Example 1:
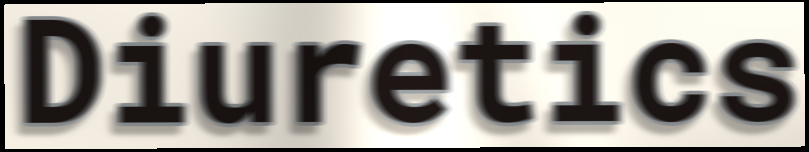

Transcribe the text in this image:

Diuretics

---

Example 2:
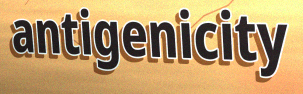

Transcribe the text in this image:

antigenicity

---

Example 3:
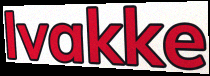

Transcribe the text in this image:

Ivakke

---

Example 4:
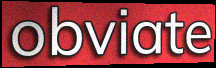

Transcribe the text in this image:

obviate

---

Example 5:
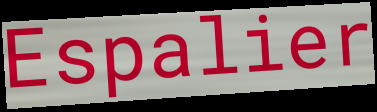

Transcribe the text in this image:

Espalier